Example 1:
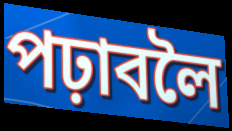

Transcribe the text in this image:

পঢ়াবলৈ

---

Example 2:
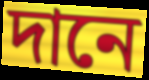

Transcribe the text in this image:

দানে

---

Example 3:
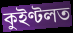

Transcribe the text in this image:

কুইণ্টলত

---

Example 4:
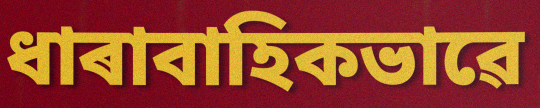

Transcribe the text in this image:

ধাৰাবাহিকভাৱে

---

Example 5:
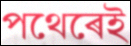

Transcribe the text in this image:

পথেৰেই